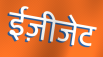
ईज़ीजेट